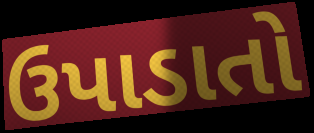
ઉપાડાતો